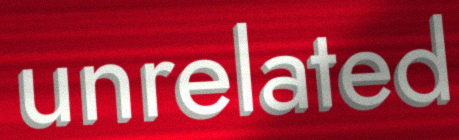
unrelated